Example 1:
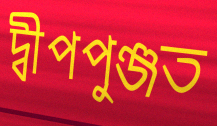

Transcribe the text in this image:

দ্বীপপুঞ্জত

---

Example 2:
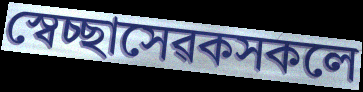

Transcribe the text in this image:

স্বেচ্ছাসেৱকসকলে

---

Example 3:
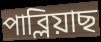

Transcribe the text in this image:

পাব্লিয়াছ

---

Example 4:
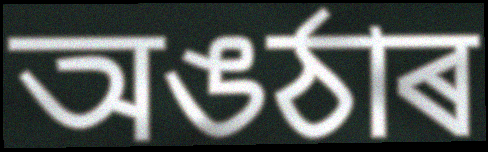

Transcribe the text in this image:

অঙঠাৰ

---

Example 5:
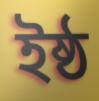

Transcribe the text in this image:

ইষ্ঠ